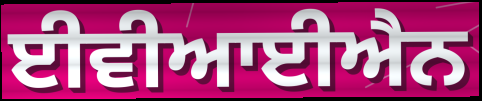
ਈਵੀਆਈਐਨ